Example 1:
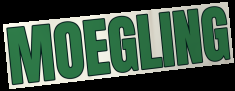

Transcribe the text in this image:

MOEGLING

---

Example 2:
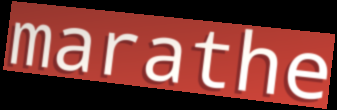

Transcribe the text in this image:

marathe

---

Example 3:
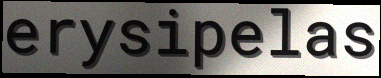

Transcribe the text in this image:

erysipelas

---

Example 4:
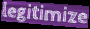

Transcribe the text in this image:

legitimize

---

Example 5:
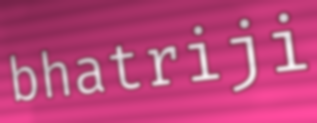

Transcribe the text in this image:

bhatriji